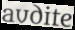
audite